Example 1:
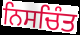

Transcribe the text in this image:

ਨਿਸਚਿੰਤ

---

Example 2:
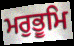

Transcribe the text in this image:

ਮਰੁਭੂਮਿ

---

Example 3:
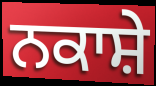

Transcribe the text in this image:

ਨਕਾਸ਼ੇ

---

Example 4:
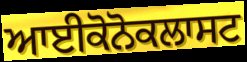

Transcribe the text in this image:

ਆਈਕੋਨੋਕਲਾਸਟ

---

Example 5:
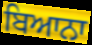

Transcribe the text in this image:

ਬਿਆਨਾ